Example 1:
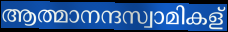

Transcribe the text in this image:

ആത്മാനന്ദസ്വാമികള്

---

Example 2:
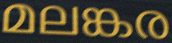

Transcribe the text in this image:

മലങ്കര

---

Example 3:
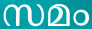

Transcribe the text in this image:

സമം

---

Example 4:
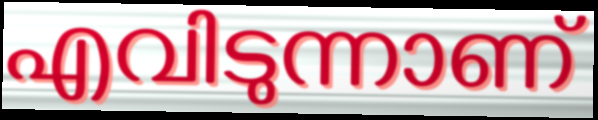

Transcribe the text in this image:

എവിടുന്നാണ്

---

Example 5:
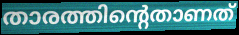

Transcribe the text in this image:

താരത്തിന്റെതാണത്